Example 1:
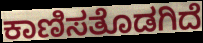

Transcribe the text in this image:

ಕಾಣಿಸತೊಡಗಿದೆ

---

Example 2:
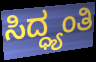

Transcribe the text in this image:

ಸಿದ್ಧ್ಯಂತಿ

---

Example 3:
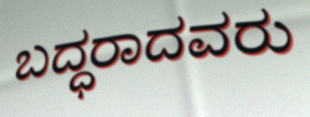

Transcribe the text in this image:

ಬದ್ಧರಾದವರು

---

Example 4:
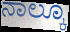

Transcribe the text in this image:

ನಾಲ್ಕೂ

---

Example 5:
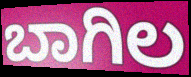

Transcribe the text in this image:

ಬಾಗಿಲ